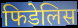
फिडेलिस